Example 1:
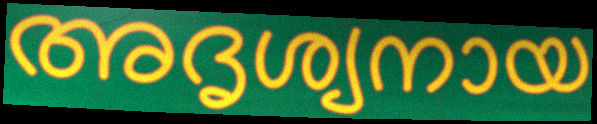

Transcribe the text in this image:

അദൃശ്യനായ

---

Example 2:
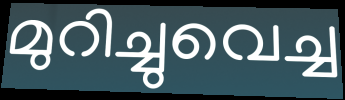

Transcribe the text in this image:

മുറിച്ചുവെച്ച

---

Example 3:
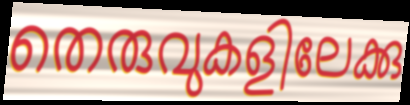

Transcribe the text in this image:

തെരുവുകളിലേക്കു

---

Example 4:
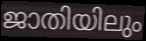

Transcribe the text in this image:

ജാതിയിലും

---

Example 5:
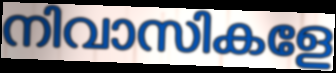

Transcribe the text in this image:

നിവാസികളേ